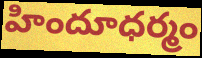
హిందూధర్మం